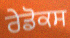
ਰੇਡੋਕਸ